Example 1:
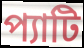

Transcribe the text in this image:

প্যাটি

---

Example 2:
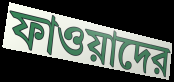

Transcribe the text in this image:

ফাওয়াদের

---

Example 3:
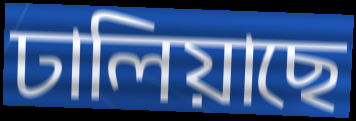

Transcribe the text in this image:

ঢালিয়াছে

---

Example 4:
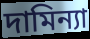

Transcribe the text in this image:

দামিন্যা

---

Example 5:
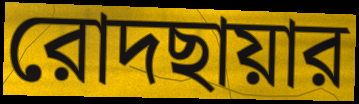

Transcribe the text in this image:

রোদছায়ার